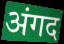
अंगद